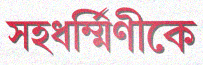
সহধর্ম্মিণীকে